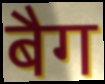
बैग